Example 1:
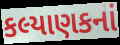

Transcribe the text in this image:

કલ્યાણકનાં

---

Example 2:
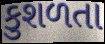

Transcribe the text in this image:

કુશળતા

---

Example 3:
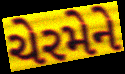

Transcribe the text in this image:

ચેરમેને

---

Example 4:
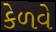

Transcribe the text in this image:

કેળવે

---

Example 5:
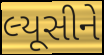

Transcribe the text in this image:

લ્યૂસીને